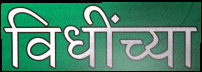
विधींच्या